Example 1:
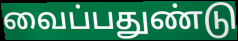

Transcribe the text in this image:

வைப்பதுண்டு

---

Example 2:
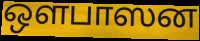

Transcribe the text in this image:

ஒளபாஸன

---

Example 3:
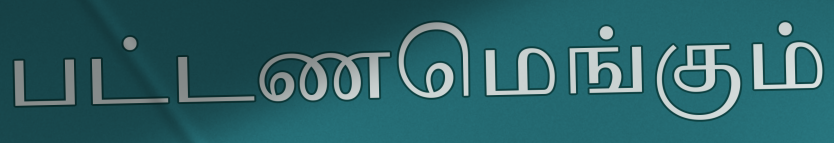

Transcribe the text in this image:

பட்டணமெங்கும்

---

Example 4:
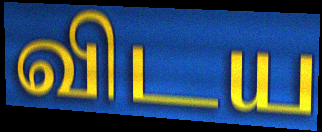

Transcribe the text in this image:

விடய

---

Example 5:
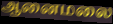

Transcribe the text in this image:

ஆனைமலை